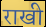
राखी